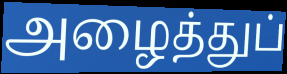
அழைத்துப்